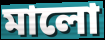
মালো